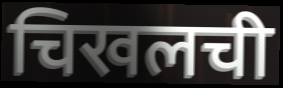
चिखलची